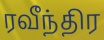
ரவீந்திர